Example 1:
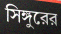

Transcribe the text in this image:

সিঙ্গুরের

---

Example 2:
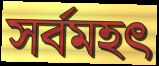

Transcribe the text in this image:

সর্বমহৎ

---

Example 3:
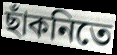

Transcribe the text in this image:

ছাঁকনিতে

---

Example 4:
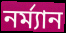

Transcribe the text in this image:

নর্ম্যান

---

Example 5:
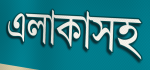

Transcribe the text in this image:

এলাকাসহ